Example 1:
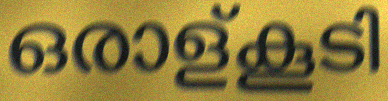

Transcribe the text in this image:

ഒരാള്കൂടി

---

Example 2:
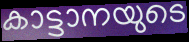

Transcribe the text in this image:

കാട്ടാനയുടെ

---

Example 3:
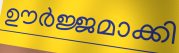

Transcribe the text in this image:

ഊർജ്ജമാക്കി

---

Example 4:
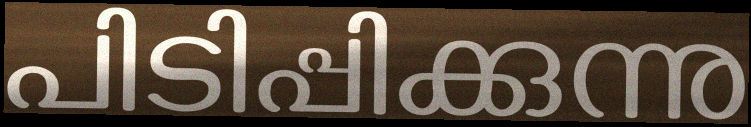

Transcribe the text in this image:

പിടിപ്പിക്കുന്നു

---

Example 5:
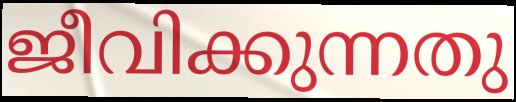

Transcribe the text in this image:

ജീവിക്കുന്നതു